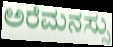
ಅರೆಮನಸ್ಸು